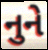
નુને